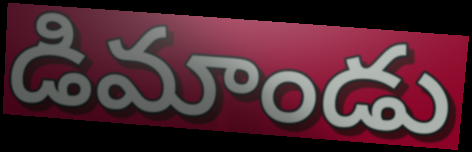
డిమాండు